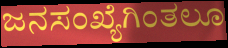
ಜನಸಂಖ್ಯೆಗಿಂತಲೂ